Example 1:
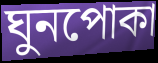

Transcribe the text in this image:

ঘুনপোকা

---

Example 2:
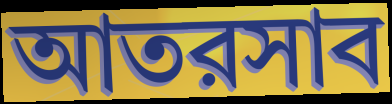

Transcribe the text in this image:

আতরসাব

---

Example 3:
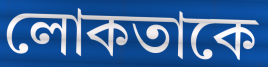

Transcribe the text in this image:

লোকতাকে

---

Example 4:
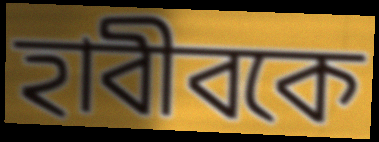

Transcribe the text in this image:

হাবীবকে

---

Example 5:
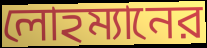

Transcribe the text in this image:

লোহম্যানের